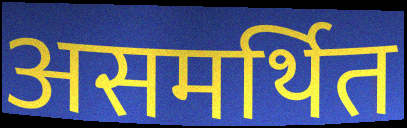
असमर्थित